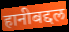
हानीबद्दल